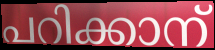
പറിക്കാന്